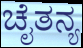
ಚೈತನ್ಯ